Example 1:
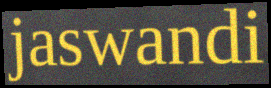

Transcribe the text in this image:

jaswandi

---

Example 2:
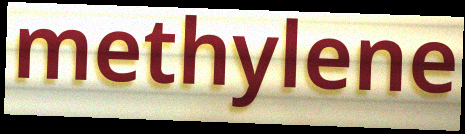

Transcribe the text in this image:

methylene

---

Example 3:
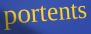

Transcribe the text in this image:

portents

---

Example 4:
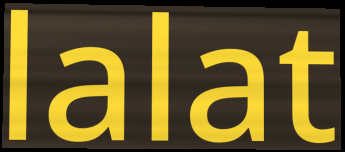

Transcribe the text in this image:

lalat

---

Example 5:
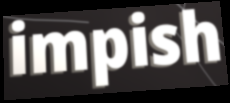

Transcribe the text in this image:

impish